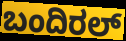
ಬಂದಿರಲ್